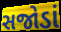
સજોડાં